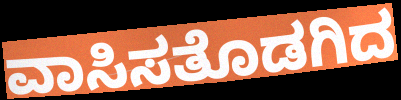
ವಾಸಿಸತೊಡಗಿದ